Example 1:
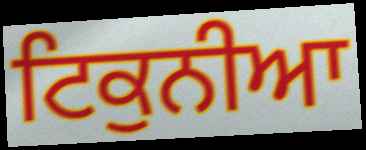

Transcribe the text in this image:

ਟਿਕੁਨੀਆ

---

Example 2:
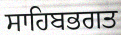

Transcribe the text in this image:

ਸਾਹਿਬਭਗਤ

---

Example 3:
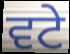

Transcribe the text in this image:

ਵਟੇ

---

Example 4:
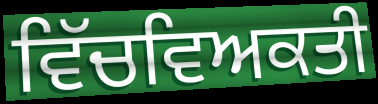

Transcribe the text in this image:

ਵਿੱਚਵਿਅਕਤੀ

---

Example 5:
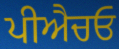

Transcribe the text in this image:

ਪੀਐਚਓ